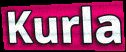
Kurla